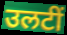
उलटीं